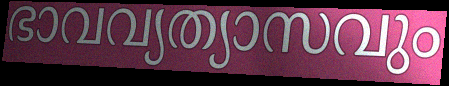
ഭാവവ്യത്യാസവും